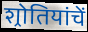
श्रोतियांचें